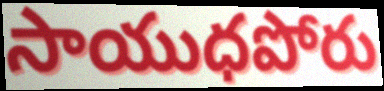
సాయుధపోరు